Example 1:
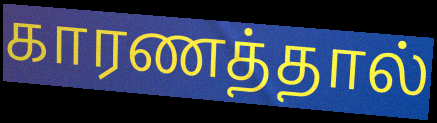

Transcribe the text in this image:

காரணத்தால்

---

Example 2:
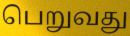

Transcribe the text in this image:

பெறுவது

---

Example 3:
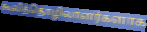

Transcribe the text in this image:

கூலித்தொழிலாளர்களாக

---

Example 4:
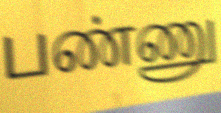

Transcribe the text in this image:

பண்ணு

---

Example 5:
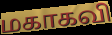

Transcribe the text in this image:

மகாகவி